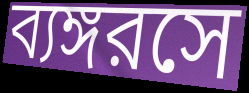
ব্যঙ্গরসে